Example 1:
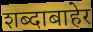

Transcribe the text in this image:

शब्दाबाहेर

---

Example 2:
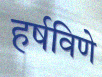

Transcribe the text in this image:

हर्षविणे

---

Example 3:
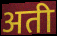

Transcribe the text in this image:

अती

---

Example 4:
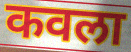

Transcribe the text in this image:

कवला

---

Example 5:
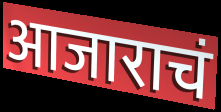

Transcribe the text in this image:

आजाराचं